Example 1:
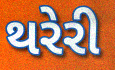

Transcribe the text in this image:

થરેરી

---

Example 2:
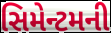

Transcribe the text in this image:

સિમેન્ટમની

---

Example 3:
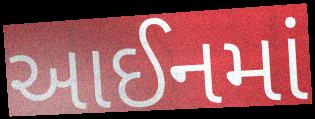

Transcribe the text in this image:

આઈનમાં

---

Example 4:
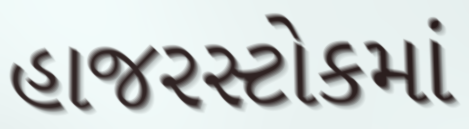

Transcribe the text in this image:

હાજરસ્ટોકમાં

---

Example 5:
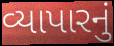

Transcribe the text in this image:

વ્યાપારનું